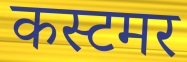
कस्टमर